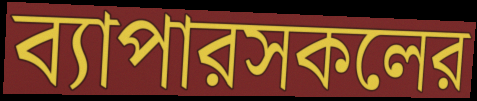
ব্যাপারসকলের